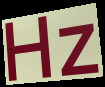
Hz